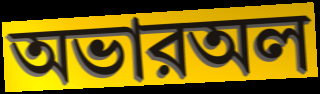
অভারঅল